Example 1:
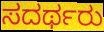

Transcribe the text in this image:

ಸದರ್ಥರು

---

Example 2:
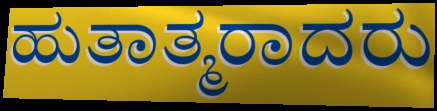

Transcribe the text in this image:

ಹುತಾತ್ಮರಾದರು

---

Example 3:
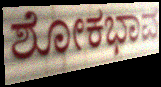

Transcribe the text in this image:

ಶೋಕಭಾವ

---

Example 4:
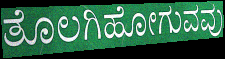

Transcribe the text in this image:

ತೊಲಗಿಹೋಗುವವು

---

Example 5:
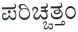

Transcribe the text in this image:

ಪರಿಚ್ಚತ್ತಂ